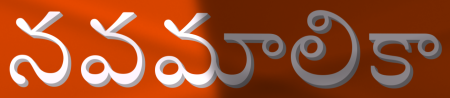
నవమాలికా